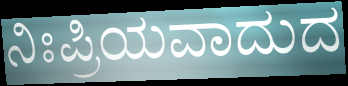
ನಿಃಪ್ರಿಯವಾದುದ